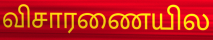
விசாரணையில